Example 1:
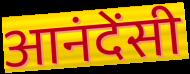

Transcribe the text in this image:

आनंदेंसी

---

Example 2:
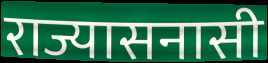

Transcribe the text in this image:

राज्यासनासी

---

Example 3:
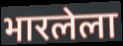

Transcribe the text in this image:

भारलेला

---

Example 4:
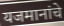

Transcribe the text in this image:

यजमानांचे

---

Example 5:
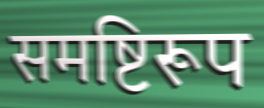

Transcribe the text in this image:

समष्टिरूप